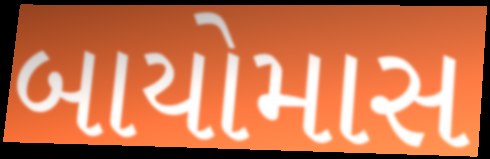
બાયોમાસ